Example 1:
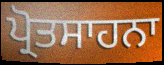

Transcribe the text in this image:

ਪ੍ਰੋਤਸਾਹਨਾ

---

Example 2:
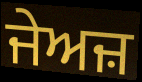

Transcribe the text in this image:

ਜੇਅਜ਼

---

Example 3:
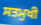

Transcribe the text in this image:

ਸਤਮੁਖੀ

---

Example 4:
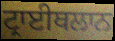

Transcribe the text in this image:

ਟ੍ਰਾਈਥਲਾਨ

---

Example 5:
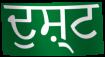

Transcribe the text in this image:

ਦੁਸ਼੍ਟ